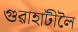
গুৱাহাটীলৈ